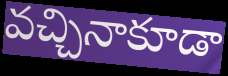
వచ్చినాకూడా